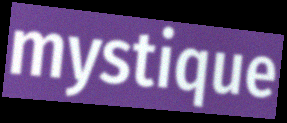
mystique